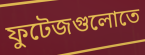
ফুটেজগুলোতে